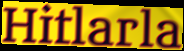
Hitlarla